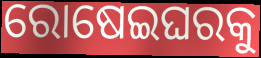
ରୋଷେଇଘରକୁ